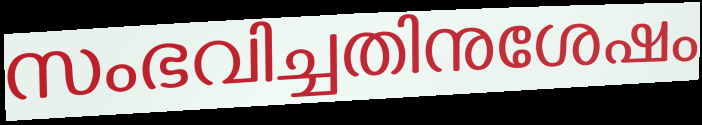
സംഭവിച്ചതിനുശേഷം